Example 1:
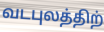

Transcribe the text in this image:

வடபுலத்திற்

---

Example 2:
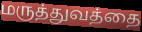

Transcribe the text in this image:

மருத்துவத்தை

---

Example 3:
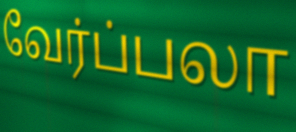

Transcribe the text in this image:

வேர்ப்பலா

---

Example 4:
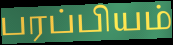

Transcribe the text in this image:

பரப்பியம்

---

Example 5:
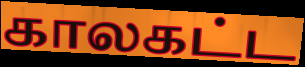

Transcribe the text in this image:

காலகட்ட